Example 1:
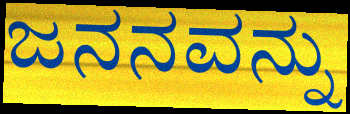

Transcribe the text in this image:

ಜನನವನ್ನು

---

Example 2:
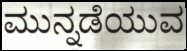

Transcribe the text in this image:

ಮುನ್ನಡೆಯುವ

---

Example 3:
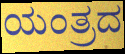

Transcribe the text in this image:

ಯಂತ್ರದ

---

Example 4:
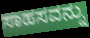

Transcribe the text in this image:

ಸಾಹಸವನ್ನು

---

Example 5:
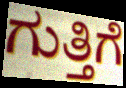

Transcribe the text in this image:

ಗುತ್ತಿಗೆ